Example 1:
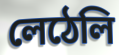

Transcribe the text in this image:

লেঠেলি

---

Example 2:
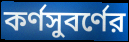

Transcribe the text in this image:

কর্ণসুবর্ণের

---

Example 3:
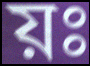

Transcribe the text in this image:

য়ঃ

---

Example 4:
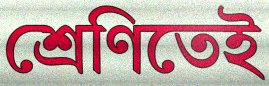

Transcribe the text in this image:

শ্রেণিতেই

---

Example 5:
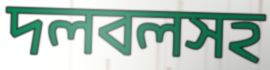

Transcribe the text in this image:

দলবলসহ